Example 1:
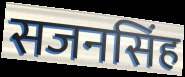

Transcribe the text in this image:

सजनसिंह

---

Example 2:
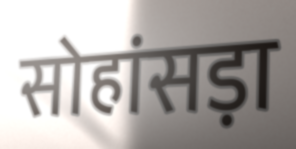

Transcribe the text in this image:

सोहांसड़ा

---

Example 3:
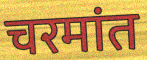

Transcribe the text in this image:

चरमांत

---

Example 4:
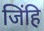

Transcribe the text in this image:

जिंहि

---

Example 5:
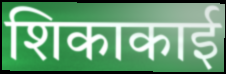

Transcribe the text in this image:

शिकाकाई